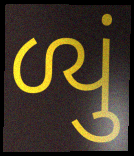
ળ્યું